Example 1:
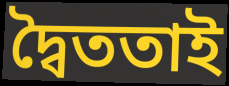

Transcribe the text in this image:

দ্বৈততাই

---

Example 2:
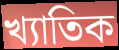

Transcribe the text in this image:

খ্যাতিক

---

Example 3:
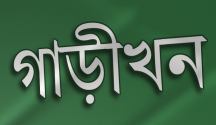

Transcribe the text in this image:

গাড়ীখন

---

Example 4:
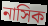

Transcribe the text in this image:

নাসিক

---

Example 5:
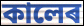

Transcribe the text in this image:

কালেৰ